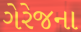
ગેરેજના